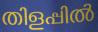
തിളപ്പിൽ